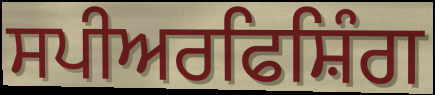
ਸਪੀਅਰਫਿਸ਼ਿੰਗ